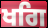
ਖਗਿ